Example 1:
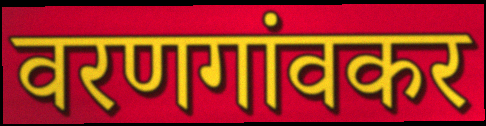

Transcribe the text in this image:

वरणगांवकर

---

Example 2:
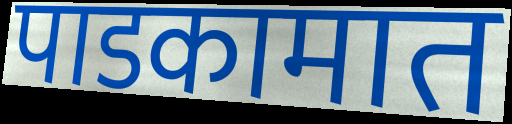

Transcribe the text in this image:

पाडकामात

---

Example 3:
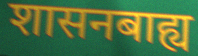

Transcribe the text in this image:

शासनबाह्य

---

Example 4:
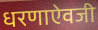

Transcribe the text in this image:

धरणाऐवजी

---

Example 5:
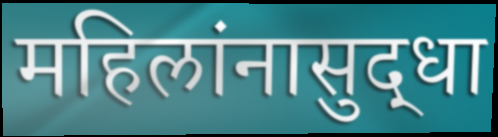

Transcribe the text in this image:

महिलांनासुद्धा